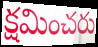
క్షమించరు